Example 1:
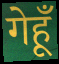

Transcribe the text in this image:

गेहूँ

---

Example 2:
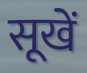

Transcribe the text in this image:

सूखें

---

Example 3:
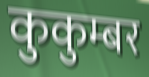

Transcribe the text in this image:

कुकुम्बर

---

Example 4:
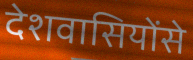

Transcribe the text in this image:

देशवासियोंसे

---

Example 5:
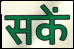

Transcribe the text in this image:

सकें